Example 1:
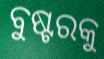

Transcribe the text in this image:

ବୁଷ୍ଟରକୁ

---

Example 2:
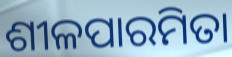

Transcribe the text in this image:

ଶୀଳପାରମିତା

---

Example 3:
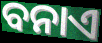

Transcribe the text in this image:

ବନାଏ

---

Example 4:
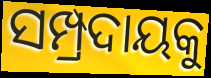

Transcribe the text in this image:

ସମ୍ପ୍ରଦାୟକୁ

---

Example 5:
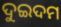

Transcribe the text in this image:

ଦୁଇଦମ